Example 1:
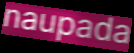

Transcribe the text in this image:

naupada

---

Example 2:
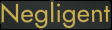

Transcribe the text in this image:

Negligent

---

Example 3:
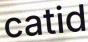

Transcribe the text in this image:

catid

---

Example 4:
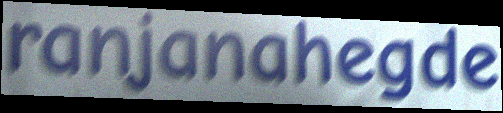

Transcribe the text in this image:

ranjanahegde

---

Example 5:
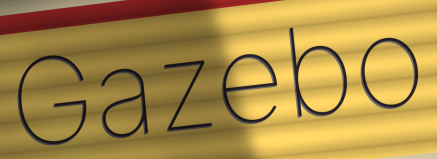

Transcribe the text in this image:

Gazebo